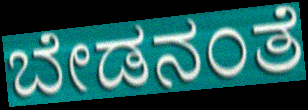
ಬೇಡನಂತೆ